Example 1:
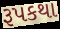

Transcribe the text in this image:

રૂપકથા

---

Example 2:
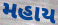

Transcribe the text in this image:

મહાય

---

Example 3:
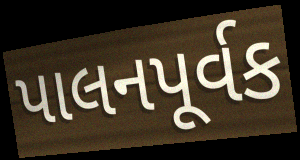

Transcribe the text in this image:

પાલનપૂર્વક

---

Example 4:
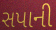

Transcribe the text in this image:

સપાની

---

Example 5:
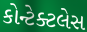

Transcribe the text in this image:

કોન્ટેક્ટલેસ